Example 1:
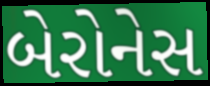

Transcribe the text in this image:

બેરોનેસ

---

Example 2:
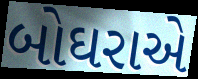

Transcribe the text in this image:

બોઘરાએ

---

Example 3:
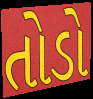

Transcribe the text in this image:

તોડો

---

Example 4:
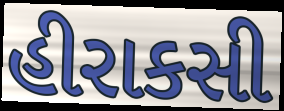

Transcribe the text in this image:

હીરાકસી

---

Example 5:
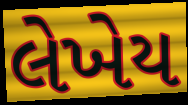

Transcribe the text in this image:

લેખેય